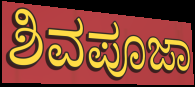
ಶಿವಪೂಜಾ